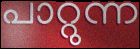
പാറ്റുന്ന